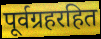
पूर्वग्रहरहित